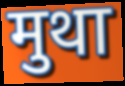
मुथा